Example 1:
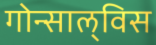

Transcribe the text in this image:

गोन्साल्विस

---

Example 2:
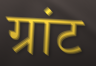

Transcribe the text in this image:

ग्रांट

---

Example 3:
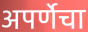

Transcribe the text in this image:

अपर्णेचा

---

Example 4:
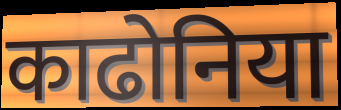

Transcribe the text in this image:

काढोनिया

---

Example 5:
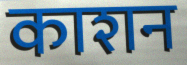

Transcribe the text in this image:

काशन